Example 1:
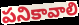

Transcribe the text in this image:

పనికావాలి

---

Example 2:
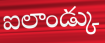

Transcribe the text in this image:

ఐలాండ్కు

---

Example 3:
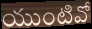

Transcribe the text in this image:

యుంటివో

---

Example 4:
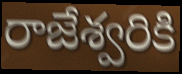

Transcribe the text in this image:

రాజేశ్వరికి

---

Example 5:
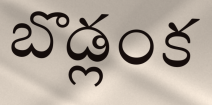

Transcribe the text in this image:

బొడ్లంక